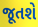
જૂતશે